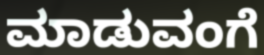
ಮಾಡುವಂಗೆ